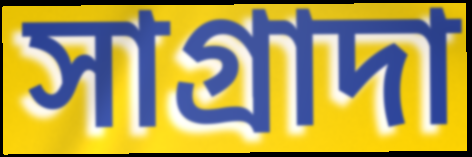
সাগ্রাদা